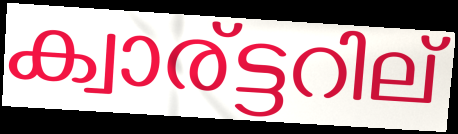
ക്വാര്ട്ടറില്